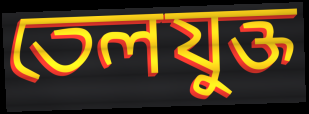
তেলযুক্ত